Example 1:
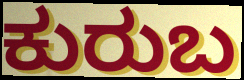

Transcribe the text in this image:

ಕುರುಬ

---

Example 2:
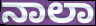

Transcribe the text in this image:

ನಾಲಾ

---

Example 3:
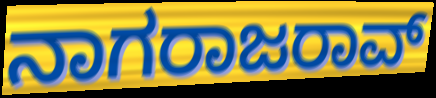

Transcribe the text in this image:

ನಾಗರಾಜರಾವ್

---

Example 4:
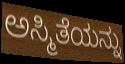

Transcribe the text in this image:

ಅಸ್ಮಿತೆಯನ್ನು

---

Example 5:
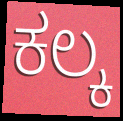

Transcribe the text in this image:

ಕಲ್ಕ